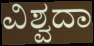
ವಿಶ್ವದಾ